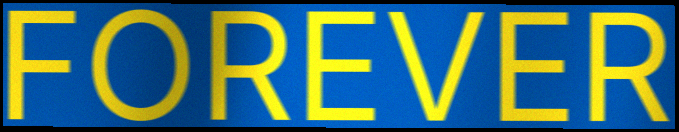
FOREVER